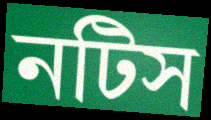
নটিস